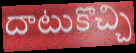
దాటుకొచ్చి